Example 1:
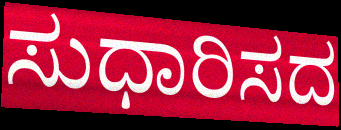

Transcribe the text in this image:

ಸುಧಾರಿಸದ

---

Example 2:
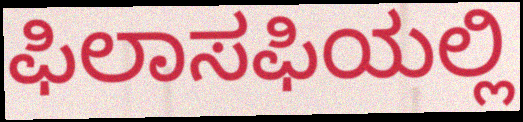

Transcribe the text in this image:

ಫಿಲಾಸಫಿಯಲ್ಲಿ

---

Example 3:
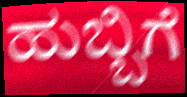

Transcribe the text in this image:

ಹುಬ್ಬಿಗೆ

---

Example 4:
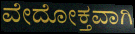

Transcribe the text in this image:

ವೇದೋಕ್ತವಾಗಿ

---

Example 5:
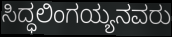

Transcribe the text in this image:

ಸಿದ್ಧಲಿಂಗಯ್ಯನವರು